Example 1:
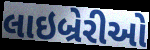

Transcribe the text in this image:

લાઇબ્રેરીઓ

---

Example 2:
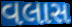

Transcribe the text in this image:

વલાસ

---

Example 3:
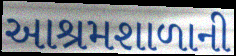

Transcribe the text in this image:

આશ્રમશાળાની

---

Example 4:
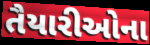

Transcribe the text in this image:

તૈયારીઓના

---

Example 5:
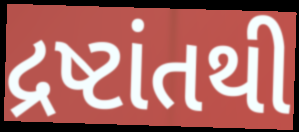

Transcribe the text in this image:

દ્રષ્ટાંતથી